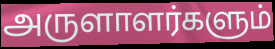
அருளாளர்களும்